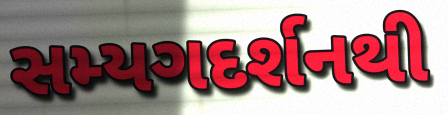
સમ્યગદર્શનથી